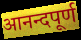
आनन्दपूर्ण